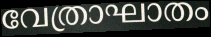
വേത്രാഘാതം